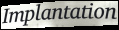
Implantation